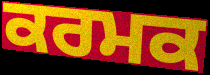
ਕਰਮਕ